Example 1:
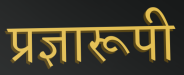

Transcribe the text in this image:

प्रज्ञारूपी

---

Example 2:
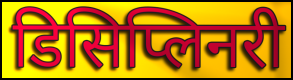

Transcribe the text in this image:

डिसिप्लिनरी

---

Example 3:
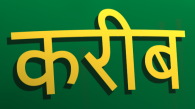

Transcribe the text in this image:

करीब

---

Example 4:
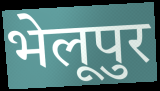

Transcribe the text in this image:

भेलूपुर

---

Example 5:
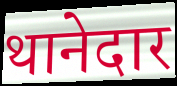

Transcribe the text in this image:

थानेदार